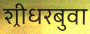
श्रीधरबुवा